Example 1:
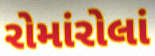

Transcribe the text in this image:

રોમાંરોલાં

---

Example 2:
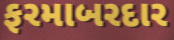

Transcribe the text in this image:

ફરમાબરદાર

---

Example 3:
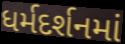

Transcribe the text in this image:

ધર્મદર્શનમાં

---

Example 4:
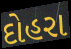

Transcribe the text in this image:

દોહરા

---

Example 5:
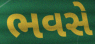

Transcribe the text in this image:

ભવસે